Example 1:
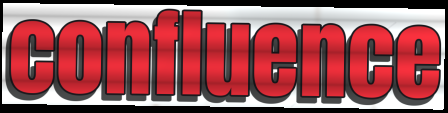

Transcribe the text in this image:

confluence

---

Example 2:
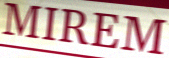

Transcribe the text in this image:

MIREM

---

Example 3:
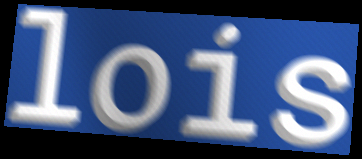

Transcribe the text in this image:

lois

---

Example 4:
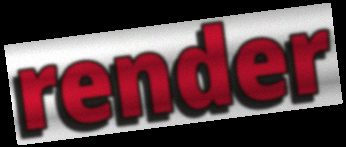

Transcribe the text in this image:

render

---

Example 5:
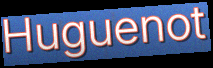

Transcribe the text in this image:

Huguenot